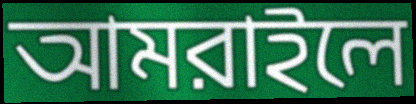
আমরাইলে